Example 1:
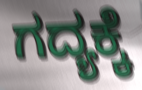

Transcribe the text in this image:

ಗದ್ಯಕ್ಕೆ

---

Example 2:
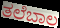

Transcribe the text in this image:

ತಲೆಬಾಲ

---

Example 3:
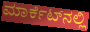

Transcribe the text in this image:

ಮಾರ್ಕೆಟ್‍ನಲ್ಲಿ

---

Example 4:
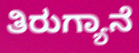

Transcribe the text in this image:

ತಿರುಗ್ಯಾನೆ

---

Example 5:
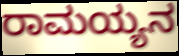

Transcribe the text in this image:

ರಾಮಯ್ಯನ